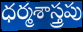
ధర్మశాస్త్రపు